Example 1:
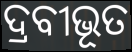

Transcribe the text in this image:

ଦ୍ରବୀଭୂତ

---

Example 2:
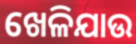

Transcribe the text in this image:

ଖେଳିଯାଉ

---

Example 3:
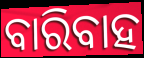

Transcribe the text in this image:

ବାରିବାହ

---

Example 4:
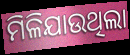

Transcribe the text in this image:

ମିଳିଯାଉଥିଲା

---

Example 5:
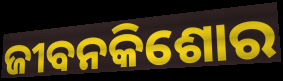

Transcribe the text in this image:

ଜୀବନକିଶୋର